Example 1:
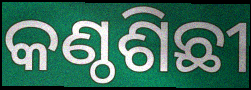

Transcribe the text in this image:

କଣ୍ଠଶିଛୀ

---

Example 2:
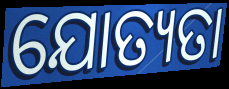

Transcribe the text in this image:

ଯୋତ୍ୟତା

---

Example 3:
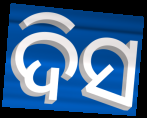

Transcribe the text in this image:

ଦିସ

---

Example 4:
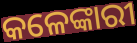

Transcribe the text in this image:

କଳେଙ୍କାରୀ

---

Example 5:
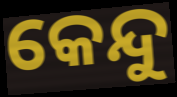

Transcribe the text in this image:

କେନ୍ଦୁ